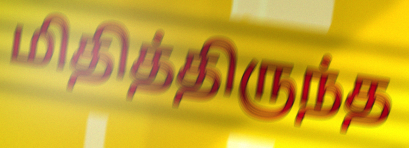
மிதித்திருந்த